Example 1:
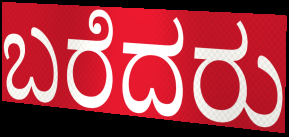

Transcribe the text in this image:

ಬರೆದರು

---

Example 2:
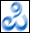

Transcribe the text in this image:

ಪಿ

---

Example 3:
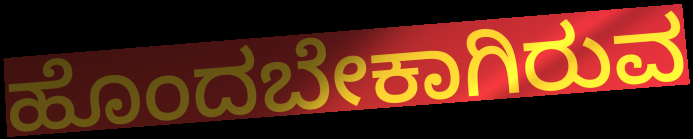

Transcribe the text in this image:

ಹೊಂದಬೇಕಾಗಿರುವ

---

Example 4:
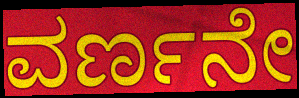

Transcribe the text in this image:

ವರ್ಣನೇ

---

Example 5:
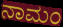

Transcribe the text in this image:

ನಾಮಂ